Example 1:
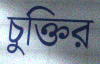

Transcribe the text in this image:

চুক্তির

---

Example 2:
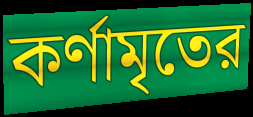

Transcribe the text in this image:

কর্ণামৃতের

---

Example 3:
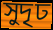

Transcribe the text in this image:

সুদৃঢ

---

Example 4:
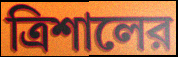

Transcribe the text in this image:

ত্রিশালের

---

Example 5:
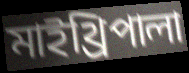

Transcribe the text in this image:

মাইথ্রিপালা